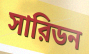
সারিডন